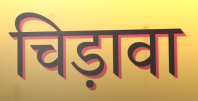
चिड़ावा